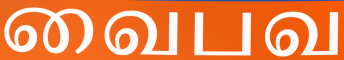
வைபவ